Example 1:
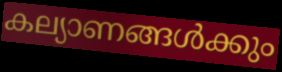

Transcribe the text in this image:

കല്യാണങ്ങൾക്കും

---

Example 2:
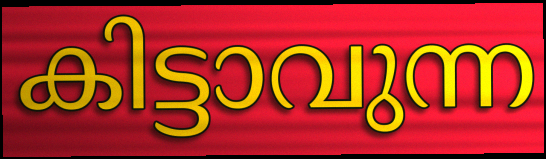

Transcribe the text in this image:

കിട്ടാവുന്ന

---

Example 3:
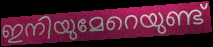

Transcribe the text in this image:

ഇനിയുമേറെയുണ്ട്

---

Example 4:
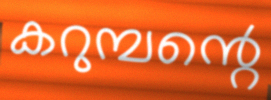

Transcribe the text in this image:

കറുമ്പന്റെ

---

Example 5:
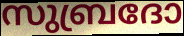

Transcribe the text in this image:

സുബ്രദോ